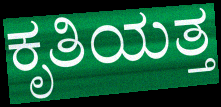
ಕೃತಿಯತ್ತ